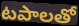
టపాలతో